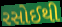
રસોઈથી